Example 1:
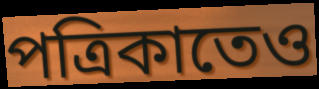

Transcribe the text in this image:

পত্রিকাতেও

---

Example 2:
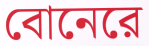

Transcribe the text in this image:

বোনেরে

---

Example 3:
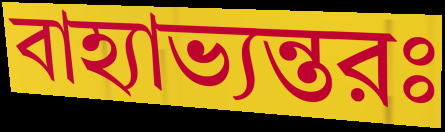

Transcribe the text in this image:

বাহ্যাভ্যন্তরঃ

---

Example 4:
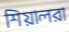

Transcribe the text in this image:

শিয়ালরা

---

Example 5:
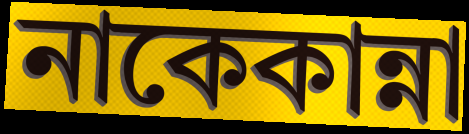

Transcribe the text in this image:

নাকেকান্না